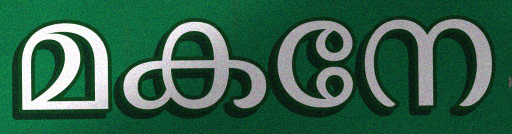
മകനേ